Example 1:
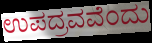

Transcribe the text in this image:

ಉಪದ್ರವವೆಂದು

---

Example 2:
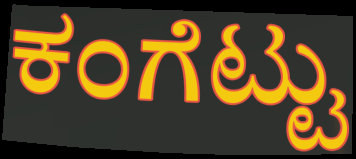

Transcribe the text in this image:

ಕಂಗೆಟ್ಟು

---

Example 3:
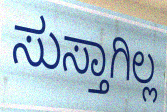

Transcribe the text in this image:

ಸುಸ್ತಾಗಿಲ್ಲ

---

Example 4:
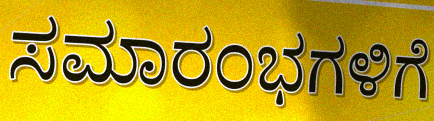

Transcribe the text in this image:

ಸಮಾರಂಭಗಳಿಗೆ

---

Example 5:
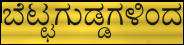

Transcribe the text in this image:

ಬೆಟ್ಟಗುಡ್ಡಗಳಿಂದ